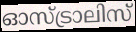
ഓസ്ട്രാലിസ്